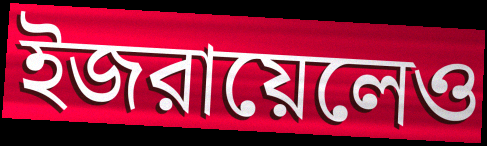
ইজরায়েলেও